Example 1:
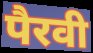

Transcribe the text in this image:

पैरवी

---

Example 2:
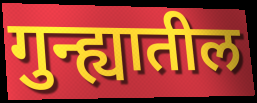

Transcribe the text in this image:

गुन्ह्यातील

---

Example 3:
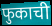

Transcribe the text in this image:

फुकाची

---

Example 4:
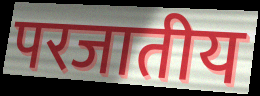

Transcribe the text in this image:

परजातीय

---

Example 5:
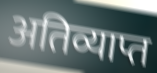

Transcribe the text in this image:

अतिव्याप्त